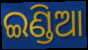
ଇଣ୍ଡିଆ